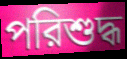
পরিশুদ্ধ